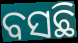
ବସଛି